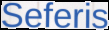
Seferis